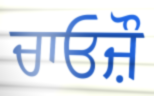
ਚਾਓਜ਼ੌ